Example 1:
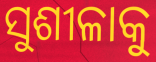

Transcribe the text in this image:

ସୁଶୀଳାକୁ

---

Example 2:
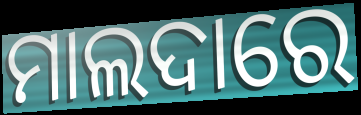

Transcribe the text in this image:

ମାଲଦାରେ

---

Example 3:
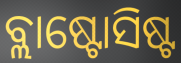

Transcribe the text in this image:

ବ୍ଲାଷ୍ଟୋସିଷ୍ଟ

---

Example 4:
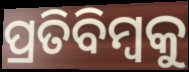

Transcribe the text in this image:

ପ୍ରତିବିମ୍ୱକୁ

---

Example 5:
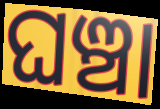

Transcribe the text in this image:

ଘଞ୍ଚା